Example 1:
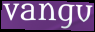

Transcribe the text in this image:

vangu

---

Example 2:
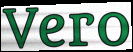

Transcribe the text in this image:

Vero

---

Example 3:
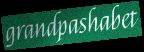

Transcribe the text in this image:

grandpashabet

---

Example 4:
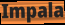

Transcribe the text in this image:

Impala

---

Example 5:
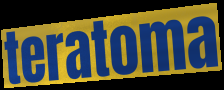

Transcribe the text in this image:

teratoma